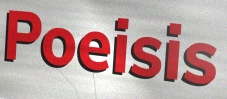
Poeisis